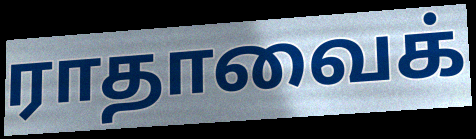
ராதாவைக்